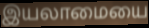
இயலாமையை